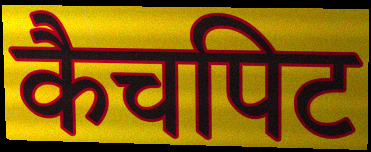
कैचपिट